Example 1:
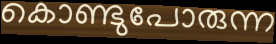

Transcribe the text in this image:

കൊണ്ടുപോരുന്ന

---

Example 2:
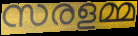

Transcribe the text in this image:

സരളമ്മ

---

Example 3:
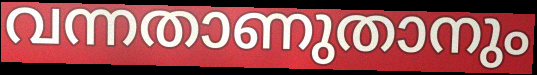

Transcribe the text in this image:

വന്നതാണുതാനും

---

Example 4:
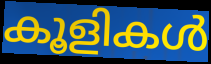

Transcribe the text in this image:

കൂളികൾ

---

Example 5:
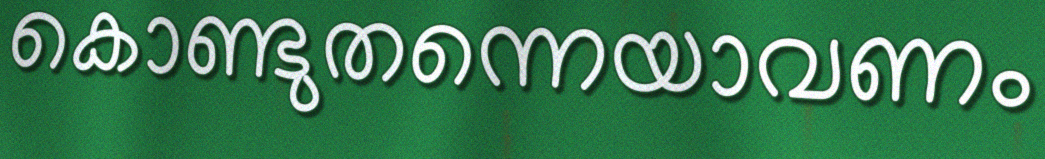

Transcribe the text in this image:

കൊണ്ടുതന്നെയാവണം